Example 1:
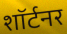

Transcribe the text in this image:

शॉर्टनर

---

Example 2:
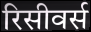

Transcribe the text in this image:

रिसीवर्स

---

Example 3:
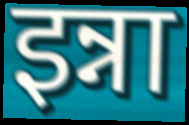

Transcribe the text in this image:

इन्ना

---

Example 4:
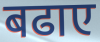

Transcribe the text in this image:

बढाए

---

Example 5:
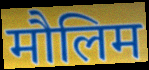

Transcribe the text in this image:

मौलिम